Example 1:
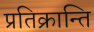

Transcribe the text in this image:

प्रतिक्रान्ति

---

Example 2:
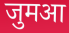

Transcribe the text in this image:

जुमआ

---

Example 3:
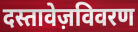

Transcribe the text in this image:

दस्तावेज़विवरण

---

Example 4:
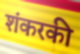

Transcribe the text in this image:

शंकरकी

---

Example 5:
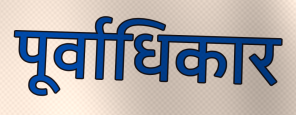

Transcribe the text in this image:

पूर्वाधिकार